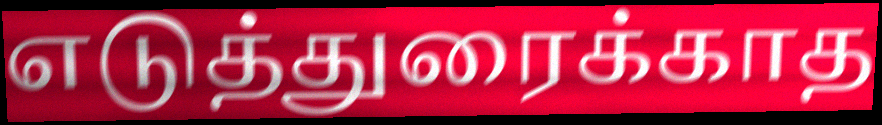
எடுத்துரைக்காத